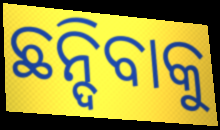
ଛନ୍ଦିବାକୁ